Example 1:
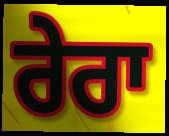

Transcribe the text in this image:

ਰੇਰਾ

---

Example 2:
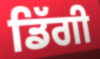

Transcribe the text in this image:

ਡਿੱਗੀ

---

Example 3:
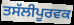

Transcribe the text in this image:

ਤਸੱਲੀਪੂਰਵਕ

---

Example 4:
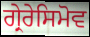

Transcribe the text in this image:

ਗ੍ਰੇਰੇਸਿਮੋਵ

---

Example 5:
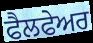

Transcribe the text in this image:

ਫੈਲਫੇਅਰ